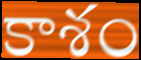
కాశం